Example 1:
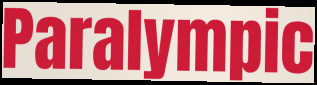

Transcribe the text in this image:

Paralympic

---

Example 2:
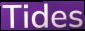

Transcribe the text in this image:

Tides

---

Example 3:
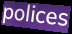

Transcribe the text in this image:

polices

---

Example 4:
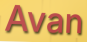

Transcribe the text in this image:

Avan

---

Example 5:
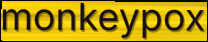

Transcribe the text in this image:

monkeypox